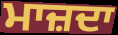
ਮਾਜ਼ਦਾ